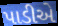
પાડીએ